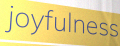
joyfulness